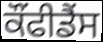
ਕੌਂਫੀਡੈਂਸ